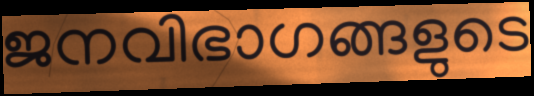
ജനവിഭാഗങ്ങളുടെ